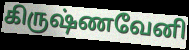
கிருஷ்ணவேனி